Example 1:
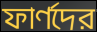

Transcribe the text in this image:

ফার্ণদের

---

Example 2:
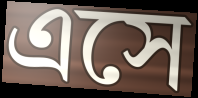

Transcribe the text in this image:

এসে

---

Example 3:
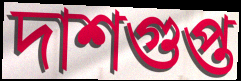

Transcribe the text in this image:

দাশগুপ্ত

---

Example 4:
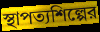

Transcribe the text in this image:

স্থাপত্যশিল্পের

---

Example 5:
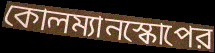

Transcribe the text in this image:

কোলম্যানস্কোপের